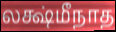
லக்ஷ்மீநாத